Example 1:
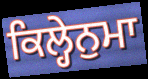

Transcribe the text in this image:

ਕਿਲ੍ਹੇਨੁਮਾ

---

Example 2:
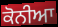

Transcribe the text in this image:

ਕੋਨੀਆ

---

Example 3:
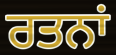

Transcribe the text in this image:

ਰਤਨਾਂ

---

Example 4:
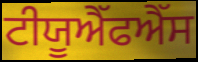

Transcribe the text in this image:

ਟੀਯੂਐੱਫਐੱਸ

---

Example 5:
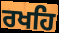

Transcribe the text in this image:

ਰਖਹਿ